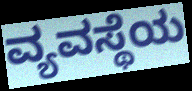
ವ್ಯವಸ್ಥೆಯ